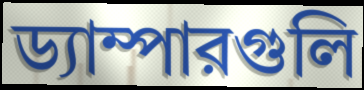
ড্যাম্পারগুলি